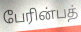
பேரின்பத்